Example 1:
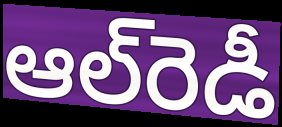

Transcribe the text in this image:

ఆల్‌రెడీ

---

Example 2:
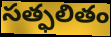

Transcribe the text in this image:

సత్ఫలితం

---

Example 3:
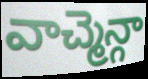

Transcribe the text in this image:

వాచ్మెన్గా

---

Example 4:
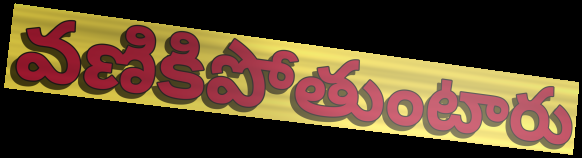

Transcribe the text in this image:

వణికిపోతుంటారు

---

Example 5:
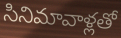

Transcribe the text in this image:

సినిమావాళ్లతో